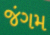
જંગમ